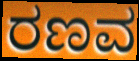
ರಣವ